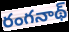
రంగనాథ్